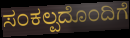
ಸಂಕಲ್ಪದೊಂದಿಗೆ